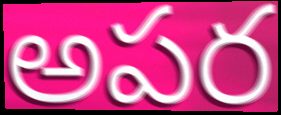
అపర